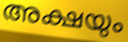
അക്ഷയും